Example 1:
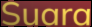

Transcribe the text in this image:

Suara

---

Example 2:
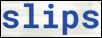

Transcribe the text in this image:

slips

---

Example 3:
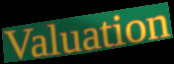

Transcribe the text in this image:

Valuation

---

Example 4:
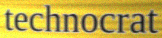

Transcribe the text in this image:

technocrat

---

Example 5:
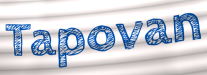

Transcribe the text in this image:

Tapovan